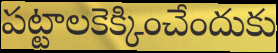
పట్టాలకెక్కించేందుకు